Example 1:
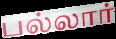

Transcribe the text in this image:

பல்லார்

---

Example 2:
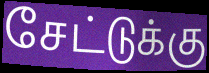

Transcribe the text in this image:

சேட்டுக்கு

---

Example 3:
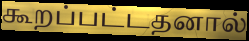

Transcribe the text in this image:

கூறப்பட்டதனால்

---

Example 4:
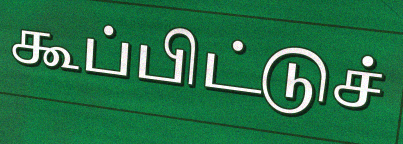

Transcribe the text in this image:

கூப்பிட்டுச்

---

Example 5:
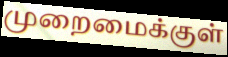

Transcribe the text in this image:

முறைமைக்குள்